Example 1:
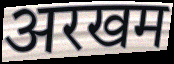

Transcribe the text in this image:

अरखम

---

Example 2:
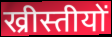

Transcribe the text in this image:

ख्रीस्तीयों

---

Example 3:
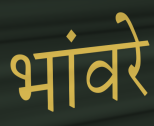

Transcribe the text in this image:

भांवरे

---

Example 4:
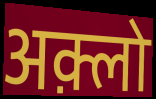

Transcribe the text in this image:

अक़्लो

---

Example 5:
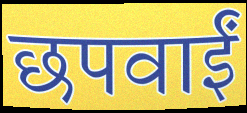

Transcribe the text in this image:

छपवाईं